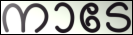
നാടേ